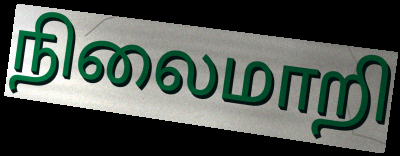
நிலைமாறி